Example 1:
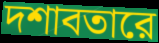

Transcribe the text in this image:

দশাবতারে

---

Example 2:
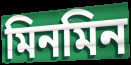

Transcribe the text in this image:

মিনমিন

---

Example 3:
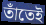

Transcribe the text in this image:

তাঁতেই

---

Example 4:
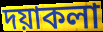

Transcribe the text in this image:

দয়াকলা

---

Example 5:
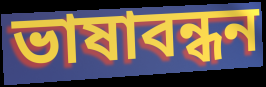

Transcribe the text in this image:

ভাষাবন্ধন